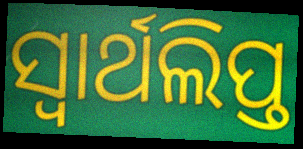
ସ୍ୱାର୍ଥଲିପ୍ତ